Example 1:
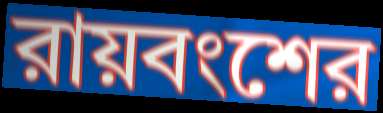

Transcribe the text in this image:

রায়বংশের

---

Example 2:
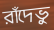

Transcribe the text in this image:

রাঁদেভু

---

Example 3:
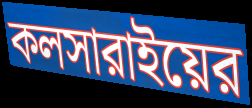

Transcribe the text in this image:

কলসারাইয়ের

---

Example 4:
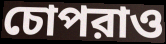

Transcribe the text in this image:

চোপরাও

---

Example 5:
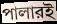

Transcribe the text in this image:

পালারই